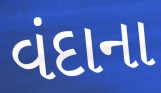
વંદાના